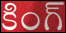
కింగ్